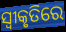
ସ୍ବୀକୃତିରେ